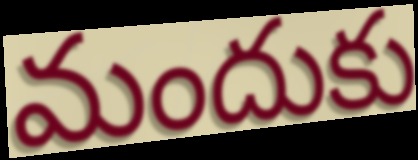
మందుకు